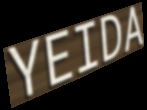
YEIDA